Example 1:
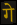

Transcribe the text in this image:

गे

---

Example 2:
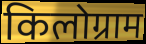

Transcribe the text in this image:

किलोग्राम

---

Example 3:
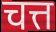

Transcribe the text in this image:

चत्त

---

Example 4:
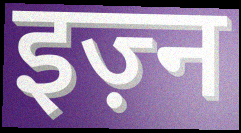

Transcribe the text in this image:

इज़्न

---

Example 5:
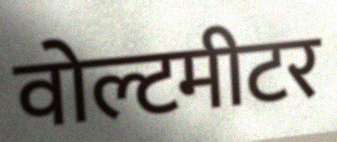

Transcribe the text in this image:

वोल्टमीटर